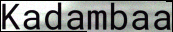
Kadambaa